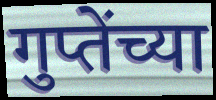
गुप्तेंच्या